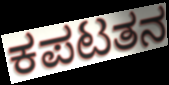
ಕಪಟತನ